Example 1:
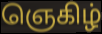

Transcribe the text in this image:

ஞெகிழ்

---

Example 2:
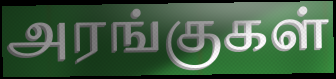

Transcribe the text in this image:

அரங்குகள்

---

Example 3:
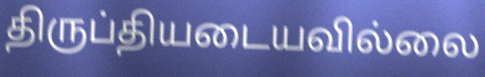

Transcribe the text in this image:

திருப்தியடையவில்லை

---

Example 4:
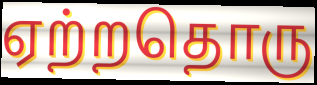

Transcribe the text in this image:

ஏற்றதொரு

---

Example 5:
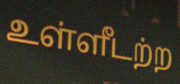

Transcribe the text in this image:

உள்ளீடற்ற